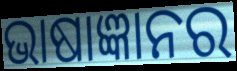
ଭାଷାଜ୍ଞାନର